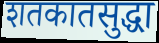
शतकातसुद्धा